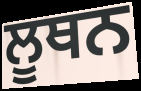
ਲੂਥਨ